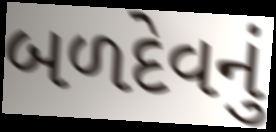
બળદેવનું